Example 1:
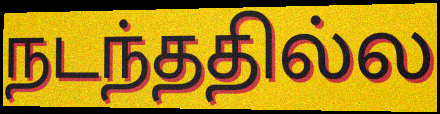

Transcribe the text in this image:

நடந்ததில்ல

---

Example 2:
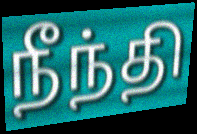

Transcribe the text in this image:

நீந்தி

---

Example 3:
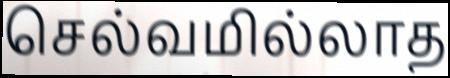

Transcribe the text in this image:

செல்வமில்லாத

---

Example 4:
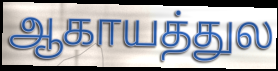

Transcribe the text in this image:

ஆகாயத்துல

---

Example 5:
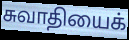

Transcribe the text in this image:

சுவாதியைக்